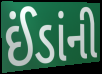
ઈંડાંની